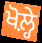
ਖੋਲ਼੍ਹੇ